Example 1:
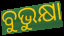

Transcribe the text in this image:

ବୁଭୁକ୍ଷା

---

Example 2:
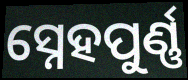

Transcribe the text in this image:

ସ୍ନେହପୁର୍ଣ୍ଣ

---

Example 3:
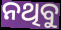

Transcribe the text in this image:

ନଥିବୁ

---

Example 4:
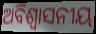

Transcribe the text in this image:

ଅବିଶ୍ୱାସନୀୟ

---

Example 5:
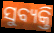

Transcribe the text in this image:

ସୁବ୍ୟକ୍ତି